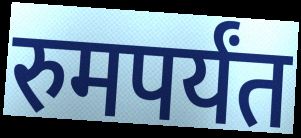
रुमपर्यंत